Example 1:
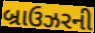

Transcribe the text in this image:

બ્રાઉઝરની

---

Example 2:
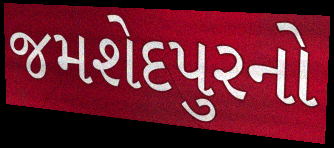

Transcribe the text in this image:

જમશેદપુરનો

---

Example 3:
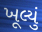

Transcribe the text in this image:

ખૂલ્યું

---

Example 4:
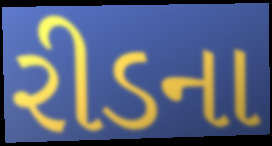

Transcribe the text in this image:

રીડના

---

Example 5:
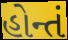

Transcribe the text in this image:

હોન્તં